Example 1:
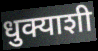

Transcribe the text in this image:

धुक्याशी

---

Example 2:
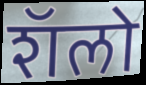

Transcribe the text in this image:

शॅलो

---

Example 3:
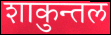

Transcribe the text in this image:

शाकुन्तल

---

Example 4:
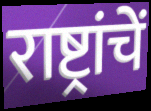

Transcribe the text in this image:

राष्ट्रांचें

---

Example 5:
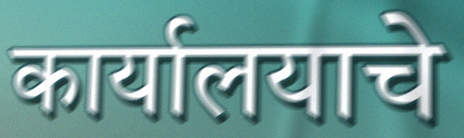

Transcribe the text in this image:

कार्यालयाचे